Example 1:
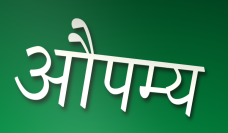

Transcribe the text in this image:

औपम्य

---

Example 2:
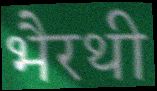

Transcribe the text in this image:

भैरथी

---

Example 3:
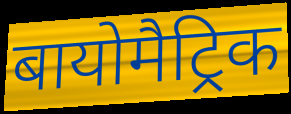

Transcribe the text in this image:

बायोमैट्रिक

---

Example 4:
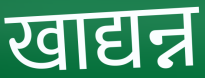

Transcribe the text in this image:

खाद्यन्न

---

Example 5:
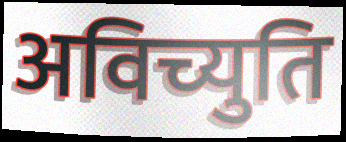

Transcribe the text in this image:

अविच्युति